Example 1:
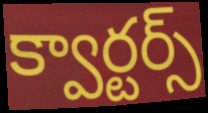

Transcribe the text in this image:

క్వార్టర్స్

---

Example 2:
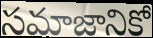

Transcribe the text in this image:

సమాజానికో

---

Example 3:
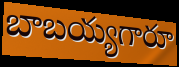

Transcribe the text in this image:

బాబయ్యగారూ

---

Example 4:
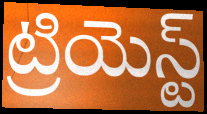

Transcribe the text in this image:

ట్రియెస్ట్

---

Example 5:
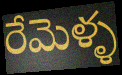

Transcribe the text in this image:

రేమెళ్ళ